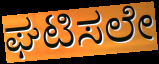
ಘಟಿಸಲೇ